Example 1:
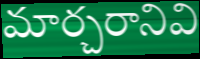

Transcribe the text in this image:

మార్చరానివి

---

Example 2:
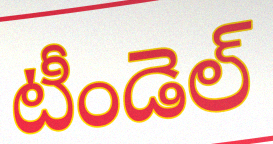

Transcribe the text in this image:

టీండెల్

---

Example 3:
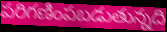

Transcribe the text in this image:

పరిగణింపబడుతున్నది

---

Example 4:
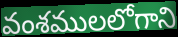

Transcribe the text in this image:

వంశములలోగాని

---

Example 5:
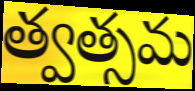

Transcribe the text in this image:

త్వత్సమ